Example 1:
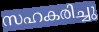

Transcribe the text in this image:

സഹകരിച്ചു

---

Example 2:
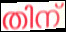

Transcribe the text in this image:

തിന്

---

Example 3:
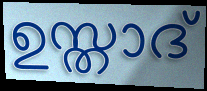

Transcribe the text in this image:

ഉസ്താദ്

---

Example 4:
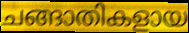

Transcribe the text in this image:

ചങ്ങാതികളായ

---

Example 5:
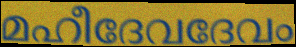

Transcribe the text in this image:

മഹീദേവദേവം